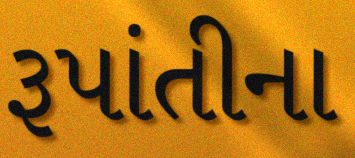
રૂપાંતીના